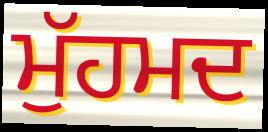
ਮੁੱਹਮਦ